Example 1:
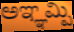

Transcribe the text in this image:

ಅಞ್ಞಮ್ಪಿ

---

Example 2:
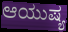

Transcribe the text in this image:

ಆಯುಷ್ಯ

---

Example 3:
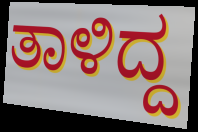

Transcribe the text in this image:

ತಾಳಿದ್ದ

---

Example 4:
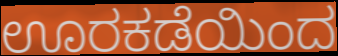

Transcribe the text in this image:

ಊರಕಡೆಯಿಂದ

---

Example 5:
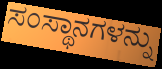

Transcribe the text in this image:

ಸಂಸ್ಥಾನಗಳನ್ನು